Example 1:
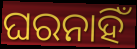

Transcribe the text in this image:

ଘରନାହିଁ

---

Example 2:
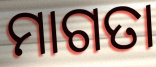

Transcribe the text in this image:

ମାଗତା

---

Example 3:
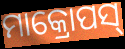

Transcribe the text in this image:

ମାକ୍ରୋପସ୍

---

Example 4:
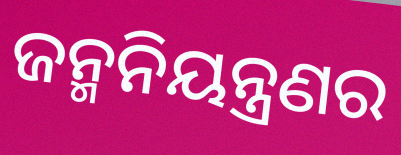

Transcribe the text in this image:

ଜନ୍ମନିୟନ୍ତ୍ରଣର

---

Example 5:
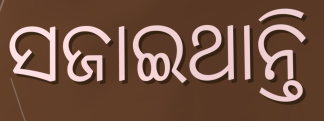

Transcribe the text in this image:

ସଜାଇଥାନ୍ତି